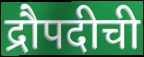
द्रौपदीची